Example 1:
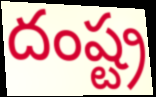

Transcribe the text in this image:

దంష్ట్ర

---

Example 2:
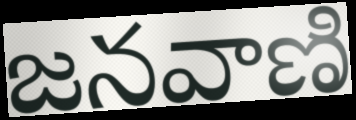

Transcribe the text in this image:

జనవాణి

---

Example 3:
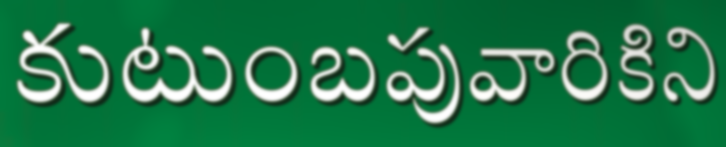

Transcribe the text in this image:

కుటుంబపువారికిని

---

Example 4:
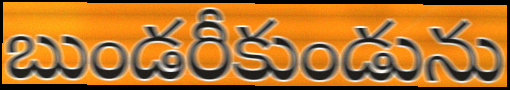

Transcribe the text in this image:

బుండరీకుండును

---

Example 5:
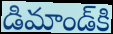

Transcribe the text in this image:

డిమాండ్‌కి